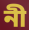
নী